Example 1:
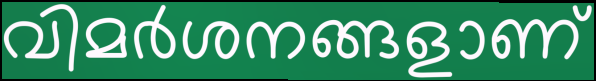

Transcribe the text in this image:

വിമർശനങ്ങളാണ്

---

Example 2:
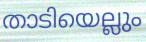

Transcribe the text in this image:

താടിയെല്ലും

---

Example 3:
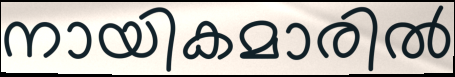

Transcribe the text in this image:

നായികമാരിൽ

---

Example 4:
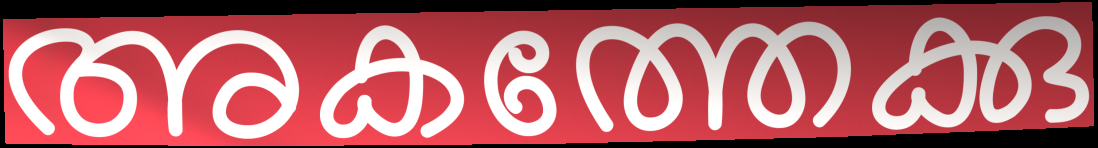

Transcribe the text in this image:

അകത്തേക്കു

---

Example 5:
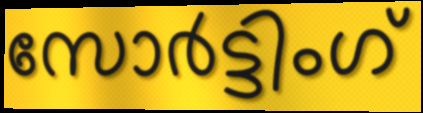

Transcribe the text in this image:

സോർട്ടിംഗ്